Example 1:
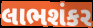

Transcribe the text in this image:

લાભશંકર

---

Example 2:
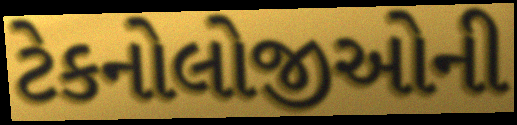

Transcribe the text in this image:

ટેકનોલોજીઓની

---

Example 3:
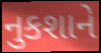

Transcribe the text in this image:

નુકશાને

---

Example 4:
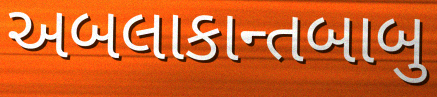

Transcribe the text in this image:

અબલાકાન્તબાબુ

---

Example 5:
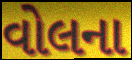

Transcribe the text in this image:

વોલના